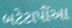
બટેટાપૌંઆ